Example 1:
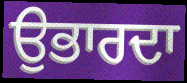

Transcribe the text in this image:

ਉਭਾਰਦਾ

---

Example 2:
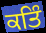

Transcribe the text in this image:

ਕਤਿੰ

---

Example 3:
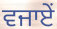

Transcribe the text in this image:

ਵਜਾਏਂ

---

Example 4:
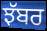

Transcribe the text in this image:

ਝੱਬਰ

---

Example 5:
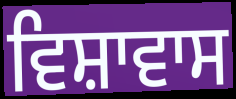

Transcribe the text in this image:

ਵਿਸ਼ਾਵਾਸ